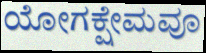
ಯೋಗಕ್ಷೇಮವೂ